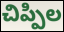
చిప్పిల